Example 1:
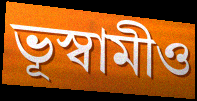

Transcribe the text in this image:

ভূস্বামীও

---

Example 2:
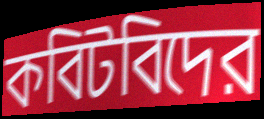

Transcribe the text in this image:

কবিটবিদের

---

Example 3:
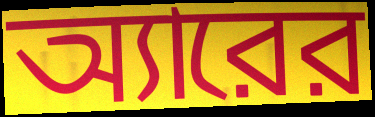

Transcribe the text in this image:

অ্যারের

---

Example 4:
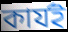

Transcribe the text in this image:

কার্যই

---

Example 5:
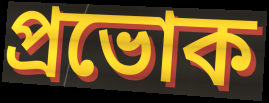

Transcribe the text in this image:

প্রভোক